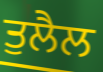
ਤੁਲੈਲ